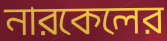
নারকেলের